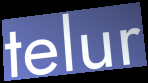
telur